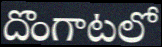
దొంగాటలో